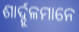
ଶାର୍ଦ୍ଦୂଳମାନେ